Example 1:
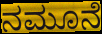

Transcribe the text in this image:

ನಮೂನೆ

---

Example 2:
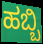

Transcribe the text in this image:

ಹಬ್ಬಿ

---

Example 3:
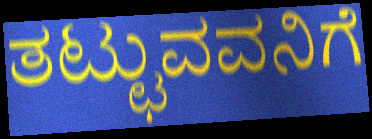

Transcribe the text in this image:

ತಟ್ಟುವವನಿಗೆ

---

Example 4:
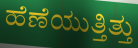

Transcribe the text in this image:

ಹೆಣೆಯುತ್ತಿತ್ತು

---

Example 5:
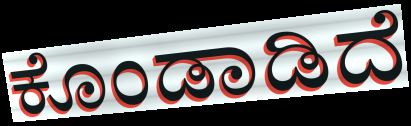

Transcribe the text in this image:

ಕೊಂಡಾಡಿದೆ